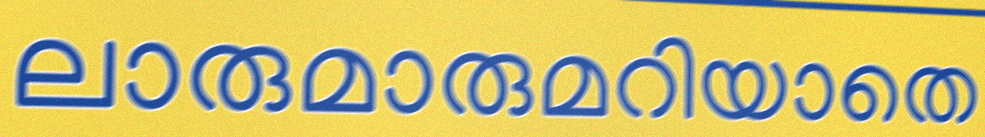
ലാരുമാരുമറിയാതെ